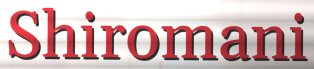
Shiromani